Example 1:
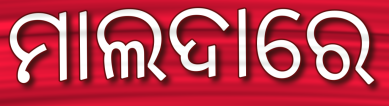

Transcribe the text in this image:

ମାଲଦାରେ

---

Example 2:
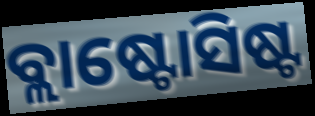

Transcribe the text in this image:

ବ୍ଲାଷ୍ଟୋସିଷ୍ଟ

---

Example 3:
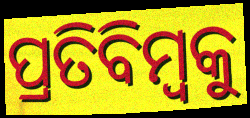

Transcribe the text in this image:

ପ୍ରତିବିମ୍ୱକୁ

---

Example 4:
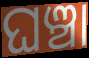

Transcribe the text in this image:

ଘଞ୍ଚା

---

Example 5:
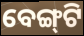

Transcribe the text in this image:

ବେଙ୍ଗ୍‌ଟି